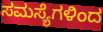
ಸಮಸ್ಯೆಗಳಿಂದ